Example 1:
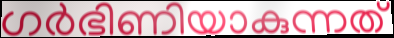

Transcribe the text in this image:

ഗർഭിണിയാകുന്നത്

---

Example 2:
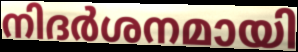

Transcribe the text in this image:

നിദർശനമായി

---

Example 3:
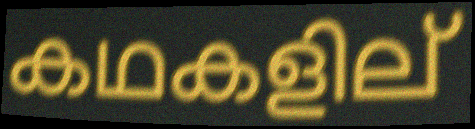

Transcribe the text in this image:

കഥകളില്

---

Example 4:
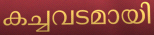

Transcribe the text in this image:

കച്ചവടമായി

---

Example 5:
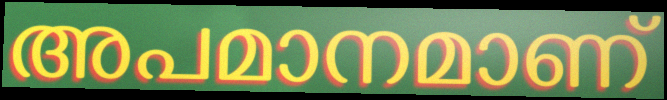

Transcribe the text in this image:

അപമാനമാണ്